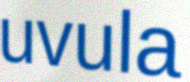
uvula